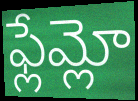
ఫ్లేమ్లో